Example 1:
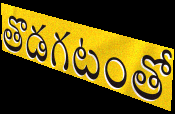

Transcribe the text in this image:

తొడగటంతో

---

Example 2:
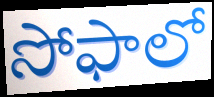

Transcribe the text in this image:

సోఫాలో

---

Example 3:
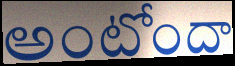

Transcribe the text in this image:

అంటోందా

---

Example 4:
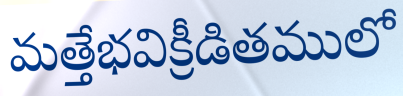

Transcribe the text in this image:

మత్తేభవిక్రీడితములో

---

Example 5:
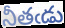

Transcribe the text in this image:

నీతఁడు